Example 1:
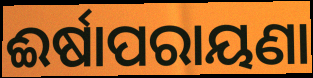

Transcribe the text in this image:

ଈର୍ଷାପରାୟଣା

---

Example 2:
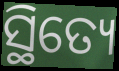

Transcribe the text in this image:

ସ୍ଥିତ୍ୟେ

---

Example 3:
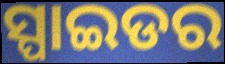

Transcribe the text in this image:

ସ୍ପାଇଡର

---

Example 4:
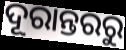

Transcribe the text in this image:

ଦୂରାନ୍ତରରୁ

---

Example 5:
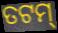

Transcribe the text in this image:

ତଟମ୍